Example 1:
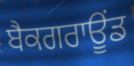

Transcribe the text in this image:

ਬੈਕਗਰਾਊਂਡ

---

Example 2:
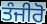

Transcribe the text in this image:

ਤੰਜੀਰੋ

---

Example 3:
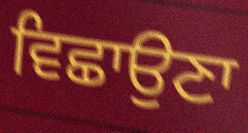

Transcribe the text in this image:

ਵਿਛਾਉਣਾ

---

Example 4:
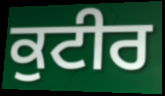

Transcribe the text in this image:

ਕੁਟੀਰ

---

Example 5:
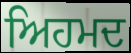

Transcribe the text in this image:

ਅਿਹਮਦ